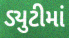
ડ્યુટીમાં